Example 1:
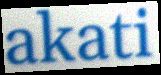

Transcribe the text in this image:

akati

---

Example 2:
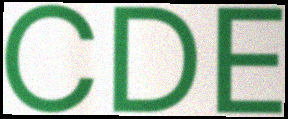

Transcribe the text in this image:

CDE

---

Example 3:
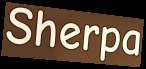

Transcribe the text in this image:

Sherpa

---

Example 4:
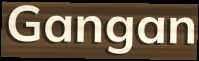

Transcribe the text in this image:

Gangan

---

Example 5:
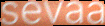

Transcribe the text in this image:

sevaa